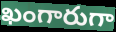
ఖంగారుగా